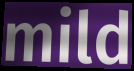
mild